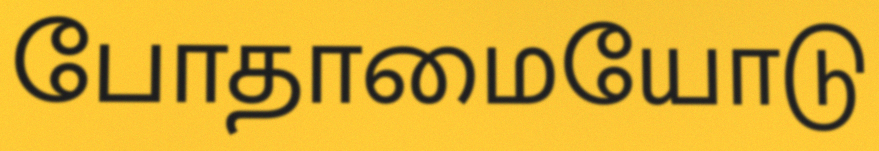
போதாமையோடு